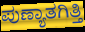
ಪುಣ್ಯಾತಗಿತ್ತಿ